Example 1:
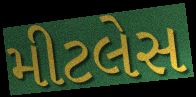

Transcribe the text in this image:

મીટલેસ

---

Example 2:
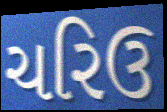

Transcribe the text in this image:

ચરિઉ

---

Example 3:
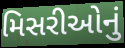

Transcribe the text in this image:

મિસરીઓનું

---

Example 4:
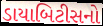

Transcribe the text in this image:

ડાયાબિટીસનો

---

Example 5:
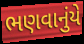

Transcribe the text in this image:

ભણવાનુંયે